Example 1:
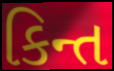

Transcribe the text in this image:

કિન્ત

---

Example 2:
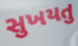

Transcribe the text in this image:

સુખયતુ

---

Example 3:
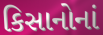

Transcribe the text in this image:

કિસાનોનાં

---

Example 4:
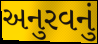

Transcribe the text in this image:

અનુરવનું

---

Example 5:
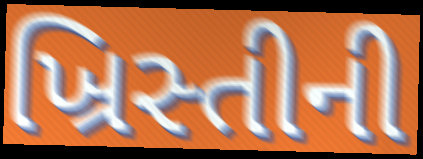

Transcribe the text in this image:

ખ્રિસ્તીની